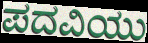
ಪದವಿಯು